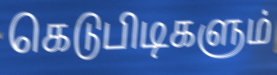
கெடுபிடிகளும்